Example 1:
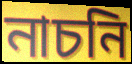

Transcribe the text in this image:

নাচনি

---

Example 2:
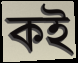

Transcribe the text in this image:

কই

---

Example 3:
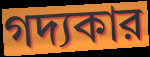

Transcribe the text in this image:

গদ্যকার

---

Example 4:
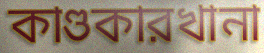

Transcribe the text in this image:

কাণ্ডকারখানা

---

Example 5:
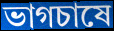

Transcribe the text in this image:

ভাগচাষে